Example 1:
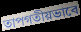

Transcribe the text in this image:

তাপগতীয়ভাবে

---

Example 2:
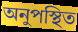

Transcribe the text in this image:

অনুপস্থিত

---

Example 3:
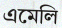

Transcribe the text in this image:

এমেলি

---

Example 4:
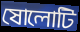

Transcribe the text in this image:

ষোলোটি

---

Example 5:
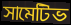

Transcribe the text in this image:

সামেটিভ